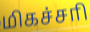
மிகச்சரி